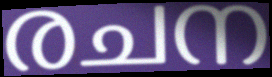
രചന